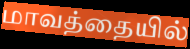
மாவத்தையில்